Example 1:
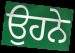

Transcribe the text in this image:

ਉਹਨੇ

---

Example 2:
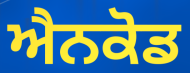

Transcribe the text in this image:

ਐਨਕੋਡ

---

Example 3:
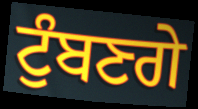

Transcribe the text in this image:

ਟੁੰਬਣਗੇ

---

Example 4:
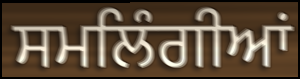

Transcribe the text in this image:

ਸਮਲਿੰਗੀਆਂ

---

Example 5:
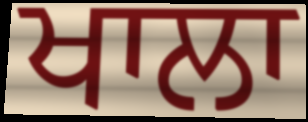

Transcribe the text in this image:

ਖਾਲਾ